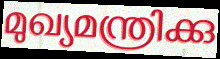
മുഖ്യമന്ത്രിക്കു